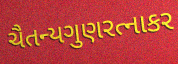
ચૈતન્યગુણરત્નાકર